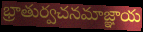
భ్రాతుర్వచనమాజ్ఞాయ